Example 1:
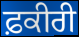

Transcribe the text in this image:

ਫ਼ਕੀਰੀ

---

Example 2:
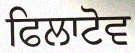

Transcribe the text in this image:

ਫਿਲਾਟੋਵ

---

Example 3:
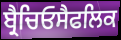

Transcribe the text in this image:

ਬ੍ਰੈਚਿਓਸੈਫਲਿਕ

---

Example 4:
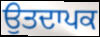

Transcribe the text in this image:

ਉਤਦਾਪਕ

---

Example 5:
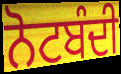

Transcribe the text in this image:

ਨੋਟਬੰਦੀ